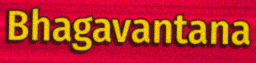
Bhagavantana